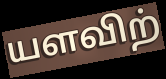
யளவிற்